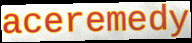
aceremedy